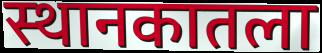
स्थानकातला